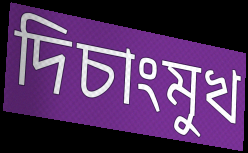
দিচাংমুখ